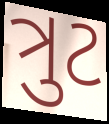
ત્રુટ